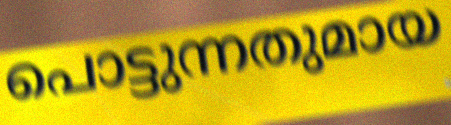
പൊട്ടുന്നതുമായ